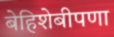
बेहिशेबीपणा